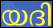
യദി